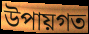
উপায়গত